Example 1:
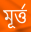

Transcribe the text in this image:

মূর্ত্ত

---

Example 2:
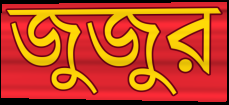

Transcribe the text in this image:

জুজুর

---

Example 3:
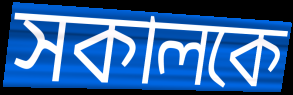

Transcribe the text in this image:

সকালকে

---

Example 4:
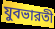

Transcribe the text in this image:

যুবভারতী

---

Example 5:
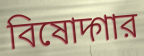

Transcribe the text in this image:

বিষোদ্গার